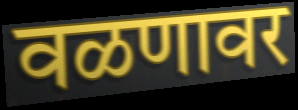
वळणावर